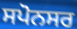
ਸਪੋਨਸਰ